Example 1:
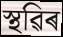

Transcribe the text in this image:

স্থৱিৰ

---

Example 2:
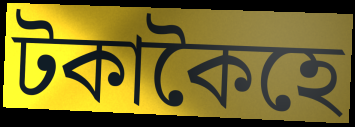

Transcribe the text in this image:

টকাকৈহে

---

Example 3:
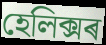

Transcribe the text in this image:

হেলিক্সৰ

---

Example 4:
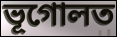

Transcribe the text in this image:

ভূগোলত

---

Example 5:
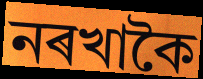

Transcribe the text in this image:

নৰখাকৈ